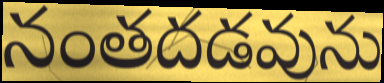
నంతదడవును